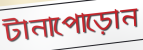
টানাপোড়োন